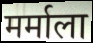
मर्माला